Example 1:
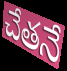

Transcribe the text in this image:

చేతనే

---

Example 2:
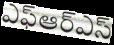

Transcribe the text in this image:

ఎఫ్ఆర్ఎస్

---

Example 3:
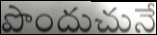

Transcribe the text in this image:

పొందుచునే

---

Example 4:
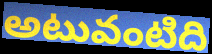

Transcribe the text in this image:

అటువంటిది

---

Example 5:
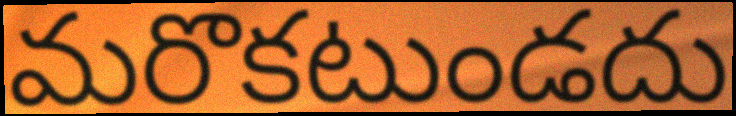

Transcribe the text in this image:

మరొకటుండదు